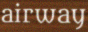
airway